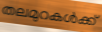
തലമുറകൾക്ക്